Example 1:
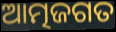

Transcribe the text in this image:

ଆତ୍ମଜଗତ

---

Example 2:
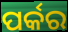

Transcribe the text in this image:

ପର୍କର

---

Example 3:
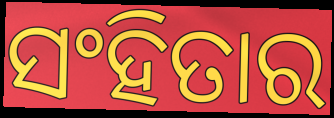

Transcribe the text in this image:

ସଂହିତାର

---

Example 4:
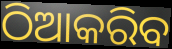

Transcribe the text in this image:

ଠିଆକରିବ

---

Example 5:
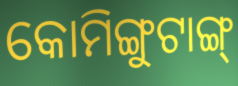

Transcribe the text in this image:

କୋମିଙ୍ଗୁଟାଙ୍ଗ୍